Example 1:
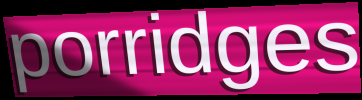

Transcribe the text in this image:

porridges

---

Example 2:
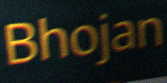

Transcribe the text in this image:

Bhojan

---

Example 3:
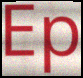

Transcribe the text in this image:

Ep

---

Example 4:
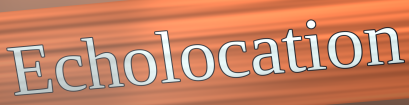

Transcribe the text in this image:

Echolocation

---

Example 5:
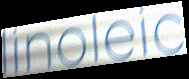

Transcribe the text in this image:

linoleic